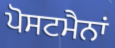
ਪੋਸਟਮੈਨਾਂ